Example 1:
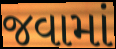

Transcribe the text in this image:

જવામાં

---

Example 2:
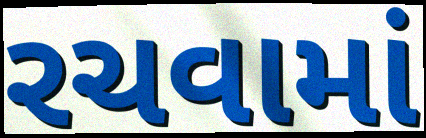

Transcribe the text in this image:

રચવામાં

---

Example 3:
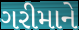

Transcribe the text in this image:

ગરીમાને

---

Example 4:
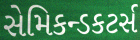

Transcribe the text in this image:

સેમિકન્ડકટર્સ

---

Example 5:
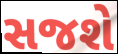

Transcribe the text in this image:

સજશે